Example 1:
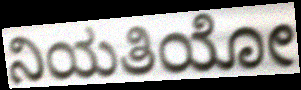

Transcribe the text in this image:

ನಿಯತಿಯೋ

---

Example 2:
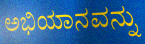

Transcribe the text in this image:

ಅಭಿಯಾನವನ್ನು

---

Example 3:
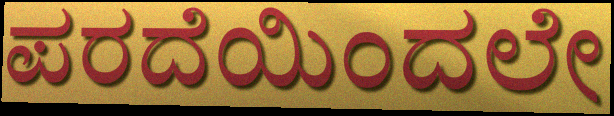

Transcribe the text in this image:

ಪರದೆಯಿಂದಲೇ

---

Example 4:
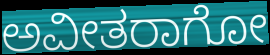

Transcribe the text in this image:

ಅವೀತರಾಗೋ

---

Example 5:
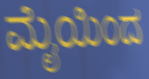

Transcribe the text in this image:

ಮೈಯಿಂದ